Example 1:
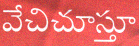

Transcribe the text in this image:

వేచిచూస్తూ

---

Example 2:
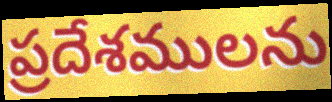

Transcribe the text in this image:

ప్రదేశములను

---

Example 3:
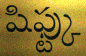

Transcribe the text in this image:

షిఫ్ట్కు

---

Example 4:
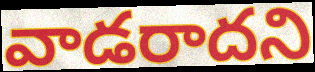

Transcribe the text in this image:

వాడరాదని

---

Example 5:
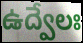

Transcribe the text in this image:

ఉద్వేలః